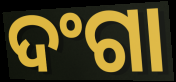
ଦଂଗା